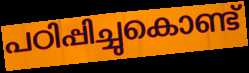
പഠിപ്പിച്ചുകൊണ്ട്